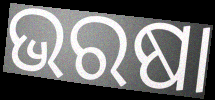
ଭରଷା